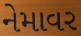
નેમાવર